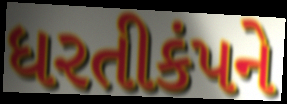
ધરતીકંપને